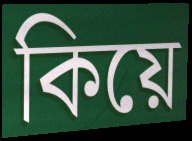
কিয়ে